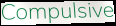
Compulsive